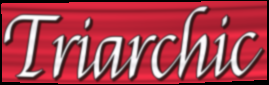
Triarchic